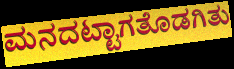
ಮನದಟ್ಟಾಗತೊಡಗಿತು